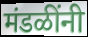
मंडळींनी